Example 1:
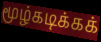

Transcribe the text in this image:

மூழ்கடிக்கக்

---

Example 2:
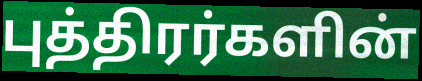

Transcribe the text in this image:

புத்திரர்களின்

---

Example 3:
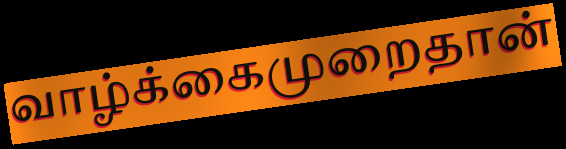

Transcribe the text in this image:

வாழ்க்கைமுறைதான்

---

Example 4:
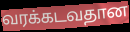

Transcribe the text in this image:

வரக்கடவதான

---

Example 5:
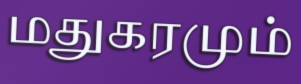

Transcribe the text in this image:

மதுகரமும்